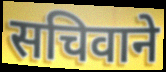
सचिवाने